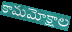
కామమోక్షాల